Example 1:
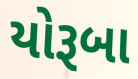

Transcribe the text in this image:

યોરૂબા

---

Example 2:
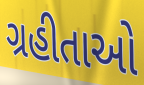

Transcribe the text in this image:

ગ્રહીતાઓ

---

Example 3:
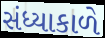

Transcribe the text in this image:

સંધ્યાકાળે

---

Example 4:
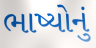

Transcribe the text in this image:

ભાષ્યોનું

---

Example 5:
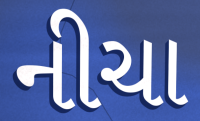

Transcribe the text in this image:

નીચા